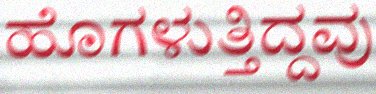
ಹೊಗಳುತ್ತಿದ್ದವು